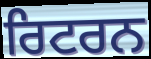
ਰਿਟਰਨ